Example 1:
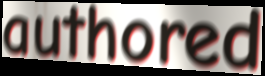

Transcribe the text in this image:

authored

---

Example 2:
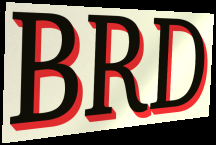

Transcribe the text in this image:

BRD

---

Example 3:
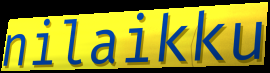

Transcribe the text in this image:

nilaikku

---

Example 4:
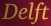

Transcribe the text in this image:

Delft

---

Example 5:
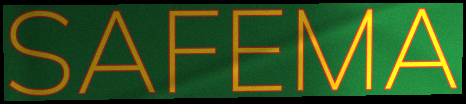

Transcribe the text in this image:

SAFEMA